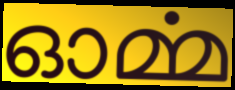
ഓൎമ്മ